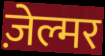
ज़ेल्मर